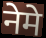
नेमे